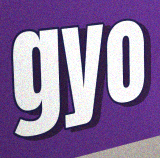
gyo